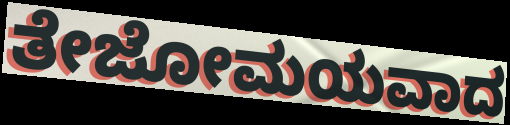
ತೇಜೋಮಯವಾದ